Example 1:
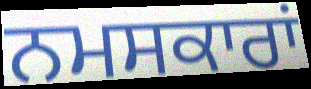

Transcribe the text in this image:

ਨਮਸਕਾਰਾਂ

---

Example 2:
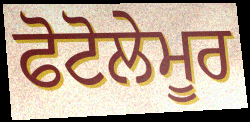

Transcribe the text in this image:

ਫੋਟੋਲੇਮੂਰ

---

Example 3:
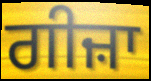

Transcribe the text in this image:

ਗੀਜ਼ਾ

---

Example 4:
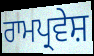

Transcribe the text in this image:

ਰਾਮਪ੍ਰਵੇਸ਼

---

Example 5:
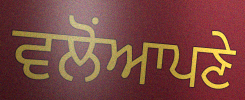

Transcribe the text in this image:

ਵਲੋਂਆਪਣੇ